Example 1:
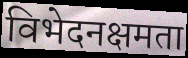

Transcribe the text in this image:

विभेदनक्षमता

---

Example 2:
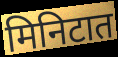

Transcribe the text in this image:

मिनिटात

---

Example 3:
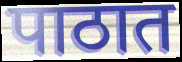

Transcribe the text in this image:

पाठात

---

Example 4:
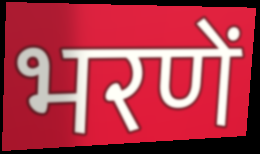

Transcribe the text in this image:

भरणें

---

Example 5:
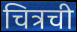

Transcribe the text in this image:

चित्रची